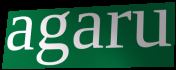
agaru